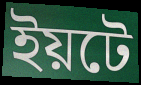
ইয়টে